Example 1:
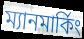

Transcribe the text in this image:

ম্যানমার্কিং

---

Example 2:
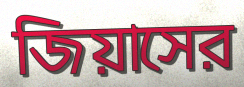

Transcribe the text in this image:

জিয়াসের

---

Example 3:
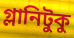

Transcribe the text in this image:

গ্লানিটুকু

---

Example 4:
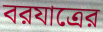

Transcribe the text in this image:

বরযাত্রের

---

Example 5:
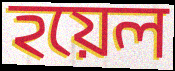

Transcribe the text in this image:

হয়েল